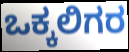
ಒಕ್ಕಲಿಗರ